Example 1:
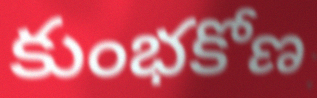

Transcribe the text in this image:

కుంభకోణ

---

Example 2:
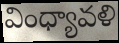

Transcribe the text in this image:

వింధ్యావళి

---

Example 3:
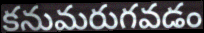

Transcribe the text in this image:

కనుమరుగవడం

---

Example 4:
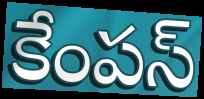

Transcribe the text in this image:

కేంపస్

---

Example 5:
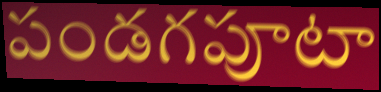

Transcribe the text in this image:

పండగపూటా